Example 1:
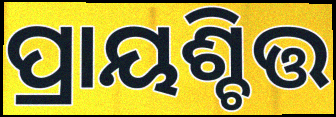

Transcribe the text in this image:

ପ୍ରାୟଶ୍ଚିତ୍ତ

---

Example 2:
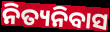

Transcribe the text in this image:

ନିତ୍ୟନିବାସ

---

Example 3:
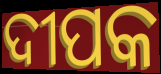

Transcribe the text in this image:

ଦୀପକ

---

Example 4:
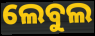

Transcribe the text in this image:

ଲେବୁଲ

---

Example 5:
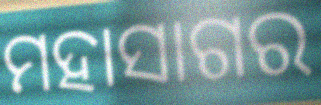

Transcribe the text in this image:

ମହାସାଗର